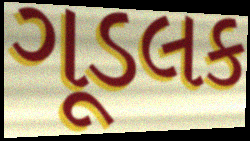
ગૂડલક